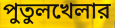
পুতুলখেলার